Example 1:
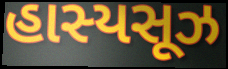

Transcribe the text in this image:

હાસ્યસૂઝ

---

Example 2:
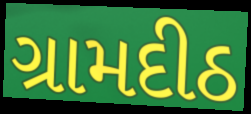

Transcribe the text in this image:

ગ્રામદીઠ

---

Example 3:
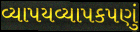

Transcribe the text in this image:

વ્યાપયવ્યાપકપણું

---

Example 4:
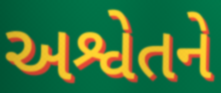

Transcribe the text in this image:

અશ્વેતને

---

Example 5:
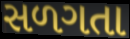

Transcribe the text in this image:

સળગતા